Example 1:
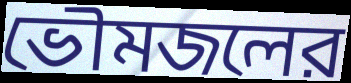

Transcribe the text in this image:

ভৌমজলের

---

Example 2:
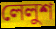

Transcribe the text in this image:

লেলুশ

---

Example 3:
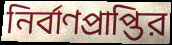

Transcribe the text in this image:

নির্বাণপ্রাপ্তির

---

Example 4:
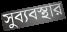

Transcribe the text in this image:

সুব্যবস্থার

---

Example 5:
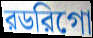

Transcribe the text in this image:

রডরিগো